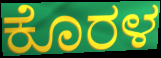
ಕೊರಳ